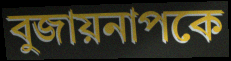
বুজায়নাপকে